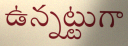
ఉన్నట్టుగా